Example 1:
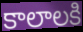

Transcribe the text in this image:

కాలాలకి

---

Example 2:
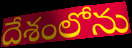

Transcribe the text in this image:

దేశంలోను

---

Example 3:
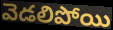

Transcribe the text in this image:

వెడలిపోయి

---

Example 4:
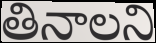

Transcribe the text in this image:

తినాలని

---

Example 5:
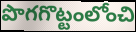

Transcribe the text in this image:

పొగగొట్టంలోంచి